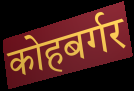
कोहबर्गर